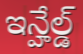
ఇన్హేల్డ్